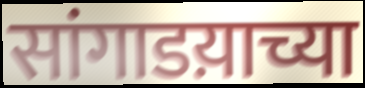
सांगाडय़ाच्या